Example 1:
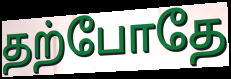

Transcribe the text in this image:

தற்போதே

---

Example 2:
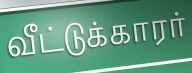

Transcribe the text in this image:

வீட்டுக்காரர்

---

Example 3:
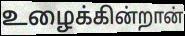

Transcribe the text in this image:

உழைக்கின்றான்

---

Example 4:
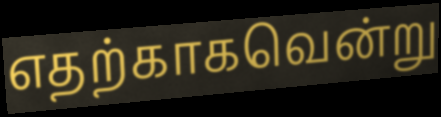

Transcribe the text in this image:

எதற்காகவென்று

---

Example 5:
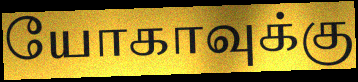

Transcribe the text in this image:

யோகாவுக்கு